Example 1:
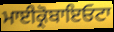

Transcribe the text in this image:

ਮਾਈਕ੍ਰੋਬਾਇਓਟਾ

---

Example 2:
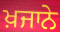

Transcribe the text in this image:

ਖ਼ਜਾਨੇ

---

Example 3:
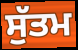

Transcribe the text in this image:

ਸੁੱਤਮ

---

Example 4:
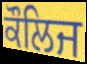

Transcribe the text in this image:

ਕੌਲਿਜ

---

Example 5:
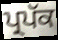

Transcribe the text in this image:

ਪ੍ਰਪੱਕ